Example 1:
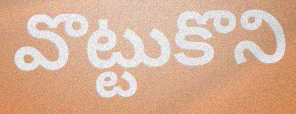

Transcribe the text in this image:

వొట్టుకొని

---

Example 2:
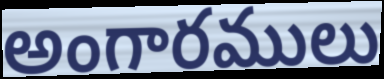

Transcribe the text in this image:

అంగారములు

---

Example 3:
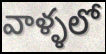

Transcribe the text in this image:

వాళ్ళలో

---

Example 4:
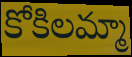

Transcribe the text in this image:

కోకిలమ్మా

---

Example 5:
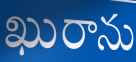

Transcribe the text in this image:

ఖురాను